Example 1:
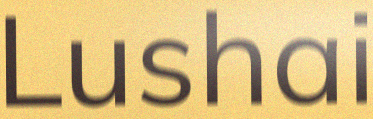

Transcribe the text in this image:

Lushai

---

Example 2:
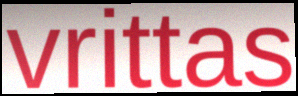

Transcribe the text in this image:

vrittas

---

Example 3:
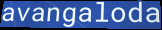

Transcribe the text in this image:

avangaloda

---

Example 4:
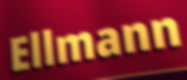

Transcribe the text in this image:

Ellmann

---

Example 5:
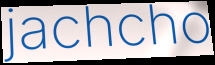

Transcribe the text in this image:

jachcho